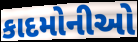
કાદમોનીઓ